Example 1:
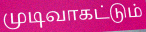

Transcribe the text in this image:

முடிவாகட்டும்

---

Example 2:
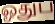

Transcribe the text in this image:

ஓதுப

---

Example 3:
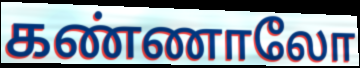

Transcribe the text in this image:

கண்ணாலோ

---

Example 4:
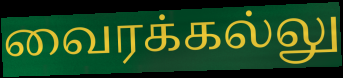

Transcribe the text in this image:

வைரக்கல்லு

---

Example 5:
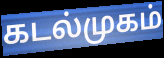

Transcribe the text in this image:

கடல்முகம்